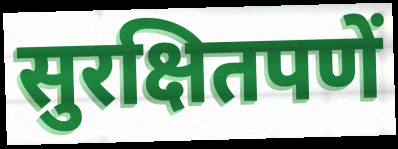
सुरक्षितपणें